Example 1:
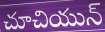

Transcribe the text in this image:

చూచియున్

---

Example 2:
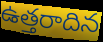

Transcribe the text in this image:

ఉత్తరాదిన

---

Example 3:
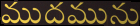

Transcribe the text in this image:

ముదమును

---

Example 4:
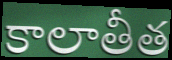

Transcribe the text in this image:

కాలాతీత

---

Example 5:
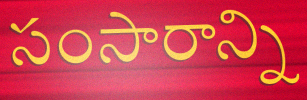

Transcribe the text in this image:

సంసారాన్ని